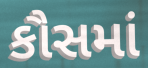
કૌસમાં